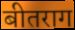
बीतराग